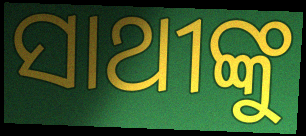
ସାଥୀଙ୍କୁ